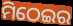
ମିଠେଇର